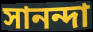
সানন্দা